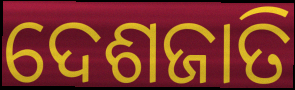
ଦେଶଜାତି